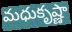
మధుకృష్ణా